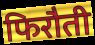
फिरौती